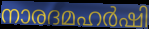
നാരദമഹർഷി